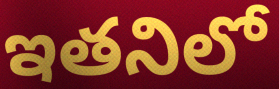
ఇతనిలో